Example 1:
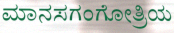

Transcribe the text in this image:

ಮಾನಸಗಂಗೋತ್ರಿಯ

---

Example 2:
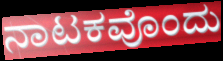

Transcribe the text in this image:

ನಾಟಕವೊಂದು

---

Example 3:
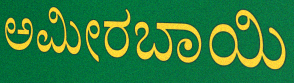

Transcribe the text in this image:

ಅಮೀರಬಾಯಿ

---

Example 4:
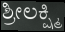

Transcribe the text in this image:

ಶ್ರೀಲಕ್ಷ್ಮಿ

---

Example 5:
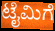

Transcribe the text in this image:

ಟೈಮಿಗೆ